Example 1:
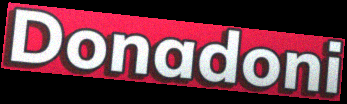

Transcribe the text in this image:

Donadoni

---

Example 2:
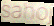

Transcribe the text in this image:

sahoj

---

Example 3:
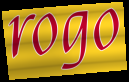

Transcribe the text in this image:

rogo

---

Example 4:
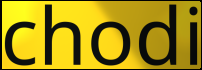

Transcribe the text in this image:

chodi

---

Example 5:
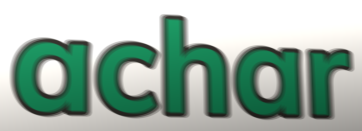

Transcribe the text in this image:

achar